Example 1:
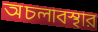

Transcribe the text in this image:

অচলাবস্থার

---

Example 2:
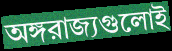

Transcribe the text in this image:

অঙ্গরাজ্যগুলোই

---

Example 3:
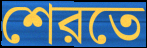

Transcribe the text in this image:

শেরতে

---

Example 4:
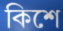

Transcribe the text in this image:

কিশে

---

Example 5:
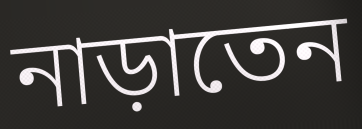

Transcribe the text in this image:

নাড়াতেন